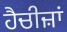
ਹੈਚੀਜ਼ਾਂ